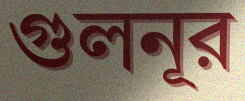
গুলনূর